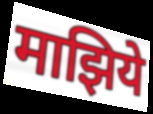
माझिये